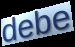
debe